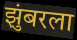
झुंबरला